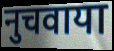
नुचवाया